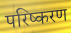
परिष्करण